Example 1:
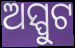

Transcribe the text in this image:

ଅସ୍ପୁଟ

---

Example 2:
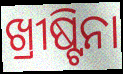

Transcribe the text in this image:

ଖ୍ରୀଷ୍ଟିନା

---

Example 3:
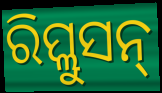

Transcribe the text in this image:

ରିପ୍ଲୁସନ୍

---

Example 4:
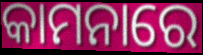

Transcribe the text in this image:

କାମନାରେ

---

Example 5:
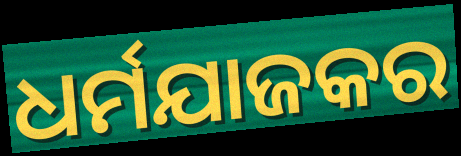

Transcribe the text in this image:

ଧର୍ମଯାଜକର